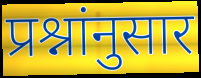
प्रश्नांनुसार